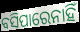
ବସିପାରେନାହିଁ